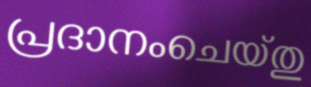
പ്രദാനംചെയ്തു